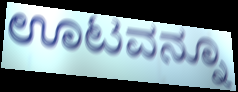
ಊಟವನ್ನೂ